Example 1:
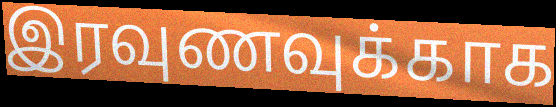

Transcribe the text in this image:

இரவுணவுக்காக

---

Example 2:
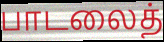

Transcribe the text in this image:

பாடலைத்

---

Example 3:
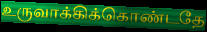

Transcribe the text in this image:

உருவாக்கிக்கொண்டதே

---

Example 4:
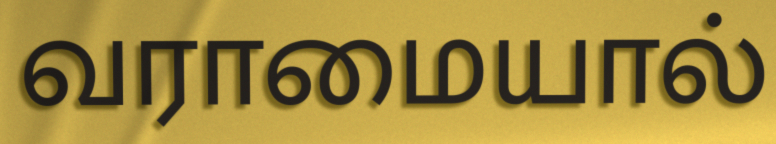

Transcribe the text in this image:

வராமையால்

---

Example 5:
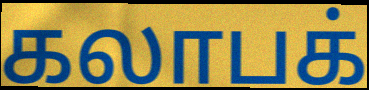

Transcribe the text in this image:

கலாபக்